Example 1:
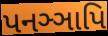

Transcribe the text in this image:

પનઞ્ઞાપિ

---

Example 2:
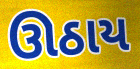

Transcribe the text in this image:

ઊઠાય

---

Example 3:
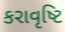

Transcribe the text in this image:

કરાવૃષ્ટિ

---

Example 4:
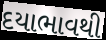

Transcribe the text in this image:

દયાભાવથી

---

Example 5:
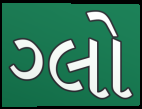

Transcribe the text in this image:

ગ્લો